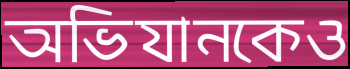
অভিযানকেও